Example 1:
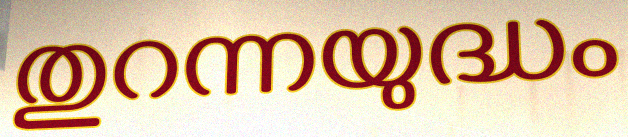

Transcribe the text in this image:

തുറന്നയുദ്ധം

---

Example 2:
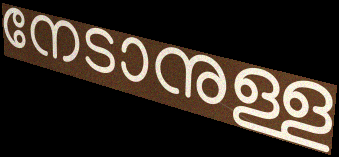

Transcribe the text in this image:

നേടാനുള്ള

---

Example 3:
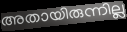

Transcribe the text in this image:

അതായിരുന്നില്ല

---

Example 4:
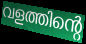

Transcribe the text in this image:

വളത്തിന്റെ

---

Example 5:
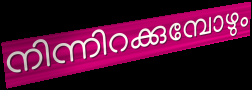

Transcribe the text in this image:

നിന്നിറക്കുമ്പോഴും